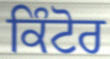
ਕਿੰਟੋਰ